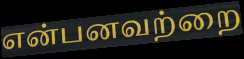
என்பனவற்றை